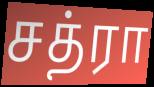
சத்ரா